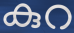
കുറ